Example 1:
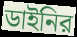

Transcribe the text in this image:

ডাইনির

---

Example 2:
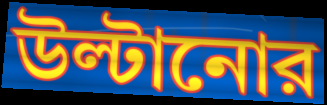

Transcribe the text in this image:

উল্টানোর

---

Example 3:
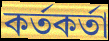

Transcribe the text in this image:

কর্তকর্তা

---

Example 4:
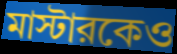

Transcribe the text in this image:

মাস্টারকেও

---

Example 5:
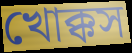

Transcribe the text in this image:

খোক্কস